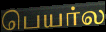
பெயர்ல